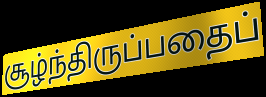
சூழ்ந்திருப்பதைப்